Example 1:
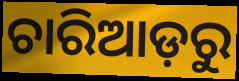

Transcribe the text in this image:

ଚାରିଆଡ଼ରୁ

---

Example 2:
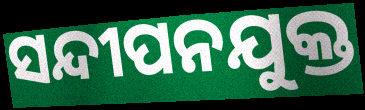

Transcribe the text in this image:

ସନ୍ଦୀପନଯୁକ୍ତ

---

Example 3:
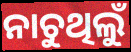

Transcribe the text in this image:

ନାଚୁଥିଲୁଁ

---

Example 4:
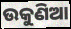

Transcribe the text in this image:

ଉକୁଣିଆ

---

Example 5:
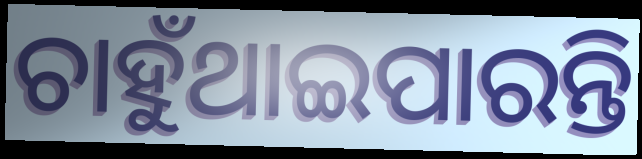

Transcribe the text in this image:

ଚାହୁଁଥାଇପାରନ୍ତି